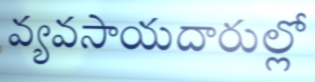
వ్యవసాయదారుల్లో